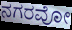
ನಗರವೋ